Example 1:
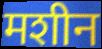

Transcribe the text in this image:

मशीन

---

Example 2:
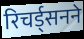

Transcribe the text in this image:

रिचर्ड्सनने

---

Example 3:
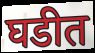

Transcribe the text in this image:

घडीत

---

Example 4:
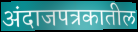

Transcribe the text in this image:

अंदाजपत्रकातील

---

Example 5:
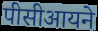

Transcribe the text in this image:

पीसीआयने